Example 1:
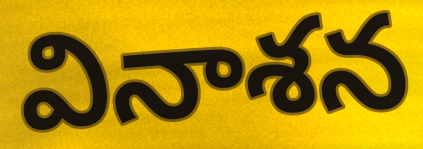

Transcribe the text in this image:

వినాశన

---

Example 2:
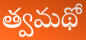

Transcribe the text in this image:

త్వమథో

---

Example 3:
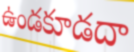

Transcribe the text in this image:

ఉండకూడదా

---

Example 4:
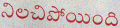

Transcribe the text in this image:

నిలచిపోయింది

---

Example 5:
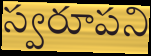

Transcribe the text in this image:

స్వరూపని